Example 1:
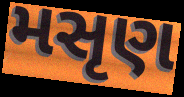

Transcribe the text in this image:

મસૃણ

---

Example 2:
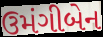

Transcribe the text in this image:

ઉમંગીબેન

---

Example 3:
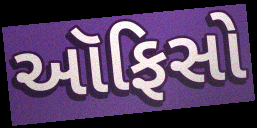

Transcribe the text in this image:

ઑફિસો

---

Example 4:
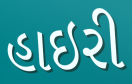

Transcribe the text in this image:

હાઇરી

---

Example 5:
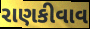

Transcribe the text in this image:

રાણકીવાવ